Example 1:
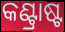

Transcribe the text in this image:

କଣ୍ଟ୍ରାଷ୍ଟ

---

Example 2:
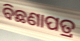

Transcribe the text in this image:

ବିଛଣାପତ୍ର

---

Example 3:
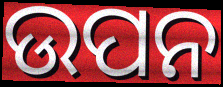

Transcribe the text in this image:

ଉପନ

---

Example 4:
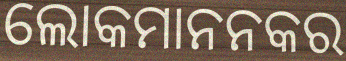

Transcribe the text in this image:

ଲୋକମାନନକର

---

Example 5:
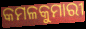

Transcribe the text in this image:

କମଳକୁମାରୀ